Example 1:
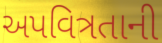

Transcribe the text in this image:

અપવિત્રતાની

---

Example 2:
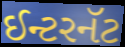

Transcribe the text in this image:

ઈન્ટરનૅટ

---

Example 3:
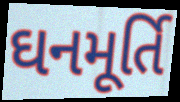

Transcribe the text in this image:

ઘનમૂર્તિ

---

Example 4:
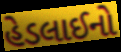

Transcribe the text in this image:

હેડલાઈનો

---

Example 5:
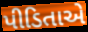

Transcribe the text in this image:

પીડિતાએ